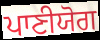
ਪਾਣੀਯੋਗ